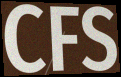
CFS